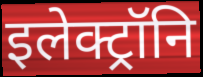
इलेक्ट्रॉनि